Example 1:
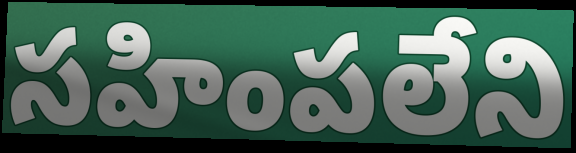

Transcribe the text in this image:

సహింపలేని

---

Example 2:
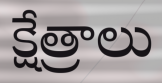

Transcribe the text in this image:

క్షేత్రాలు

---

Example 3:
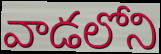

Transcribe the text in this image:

వాడలోని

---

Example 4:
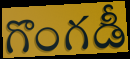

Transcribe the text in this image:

గొంగడీ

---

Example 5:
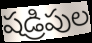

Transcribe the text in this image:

షడ్రిపుల